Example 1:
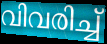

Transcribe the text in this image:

വിവരിച്ച്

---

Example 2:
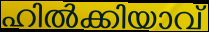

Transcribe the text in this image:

ഹിൽക്കിയാവ്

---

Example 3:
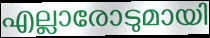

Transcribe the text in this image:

എല്ലാരോടുമായി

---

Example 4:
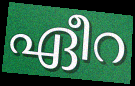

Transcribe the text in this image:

ഏീറ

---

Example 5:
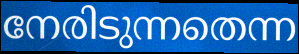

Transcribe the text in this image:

നേരിടുന്നതെന്ന